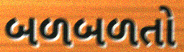
બળબળતો